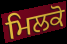
ਮਿਲਕੋ